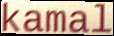
kamal